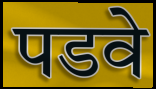
पडवे